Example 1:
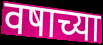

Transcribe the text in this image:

वषाच्या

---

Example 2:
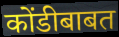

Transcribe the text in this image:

कोंडीबाबत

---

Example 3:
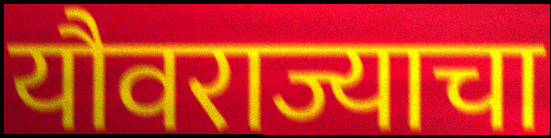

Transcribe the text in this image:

यौवराज्याचा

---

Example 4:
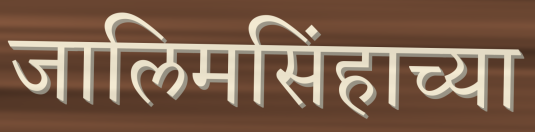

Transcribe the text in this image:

जालिमसिंहाच्या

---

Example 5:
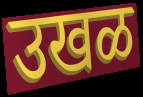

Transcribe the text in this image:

उखळ